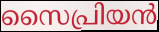
സൈപ്രിയൻ